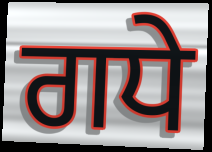
ਗਧੇ